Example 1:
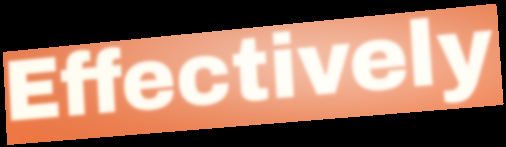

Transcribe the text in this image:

Effectively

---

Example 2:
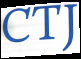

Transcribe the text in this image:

CTJ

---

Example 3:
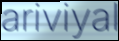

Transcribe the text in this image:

ariviyal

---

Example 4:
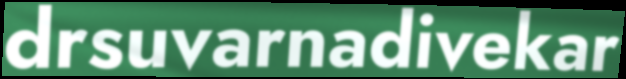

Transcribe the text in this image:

drsuvarnadivekar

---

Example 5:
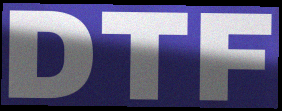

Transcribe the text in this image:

DTF